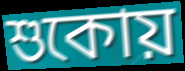
শুকোয়